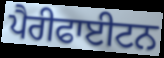
ਪੈਰੀਫਾਈਟਨ